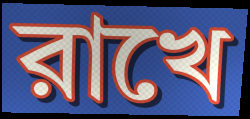
রাখে